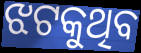
ଝଟକୁଥିବ